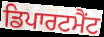
ਡਿਪਾਰਟਮੈਂਟ